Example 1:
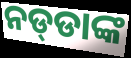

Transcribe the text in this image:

ନଡ୍‌ଡାଙ୍କ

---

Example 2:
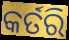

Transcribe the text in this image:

କର୍ତରି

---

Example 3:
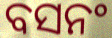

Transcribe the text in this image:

ବସନଂ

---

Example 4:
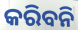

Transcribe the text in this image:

କରିବନି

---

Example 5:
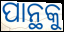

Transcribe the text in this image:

ପାନ୍ଥକୁ